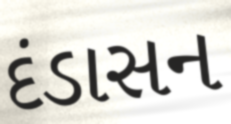
દંડાસન